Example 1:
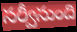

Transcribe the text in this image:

సర్వీసుంది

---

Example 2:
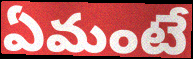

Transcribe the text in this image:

ఏమంటే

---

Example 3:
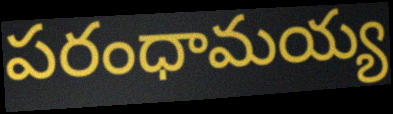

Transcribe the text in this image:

పరంధామయ్య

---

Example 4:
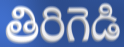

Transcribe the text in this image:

తిరిగెడి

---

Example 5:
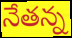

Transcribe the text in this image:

నేతన్న